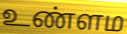
உண்ளம